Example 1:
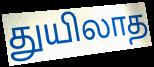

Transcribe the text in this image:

துயிலாத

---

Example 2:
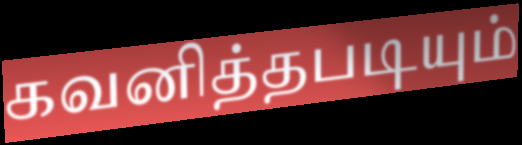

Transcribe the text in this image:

கவனித்தபடியும்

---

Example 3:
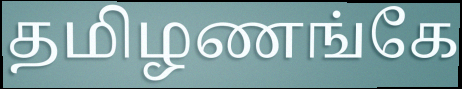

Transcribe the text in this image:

தமிழணங்கே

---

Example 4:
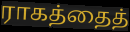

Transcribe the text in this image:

ராகத்தைத்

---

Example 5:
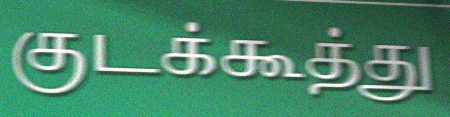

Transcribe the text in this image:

குடக்கூத்து